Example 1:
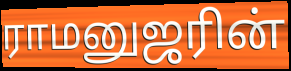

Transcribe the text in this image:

ராமனுஜரின்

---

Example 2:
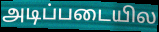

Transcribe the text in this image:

அடிப்படையில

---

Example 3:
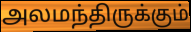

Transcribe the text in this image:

அலமந்திருக்கும்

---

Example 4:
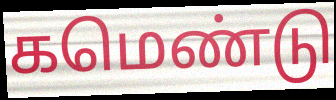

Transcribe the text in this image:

கமெண்டு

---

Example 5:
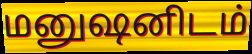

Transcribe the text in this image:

மனுஷனிடம்